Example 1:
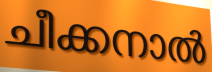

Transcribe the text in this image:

ചീക്കനാൽ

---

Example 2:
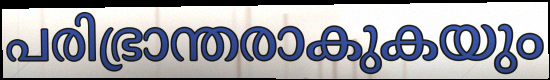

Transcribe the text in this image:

പരിഭ്രാന്തരാകുകയും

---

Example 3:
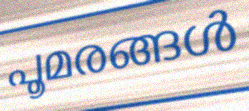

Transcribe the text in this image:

പൂമരങ്ങൾ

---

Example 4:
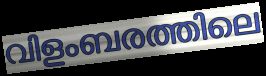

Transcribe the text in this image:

വിളംബരത്തിലെ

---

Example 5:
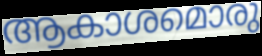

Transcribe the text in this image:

ആകാശമൊരു